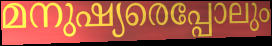
മനുഷ്യരെപ്പോലും